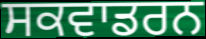
ਸਕਵਾਡਰਨ